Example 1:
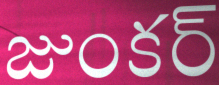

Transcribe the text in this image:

జుంకర్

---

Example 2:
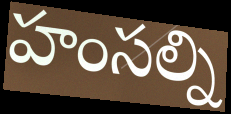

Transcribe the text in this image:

హంసల్ని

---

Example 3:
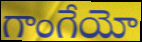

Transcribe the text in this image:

గాంగేయో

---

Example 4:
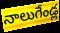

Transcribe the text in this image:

నాలుగేండ్ల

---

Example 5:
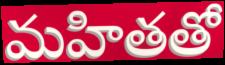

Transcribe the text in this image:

మహితతో